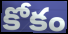
కోకం